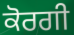
ਕੋਰਗੀ